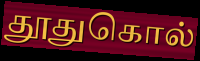
தூதுகொல்